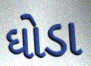
ઘોડા